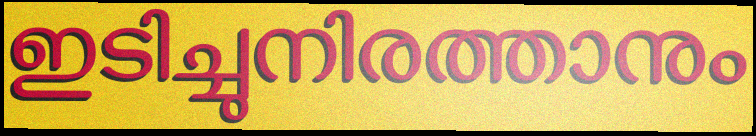
ഇടിച്ചുനിരത്താനും